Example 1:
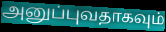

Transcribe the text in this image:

அனுப்புவதாகவும்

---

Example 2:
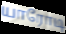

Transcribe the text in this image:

யாரோடி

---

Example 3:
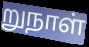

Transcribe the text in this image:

றுநாள்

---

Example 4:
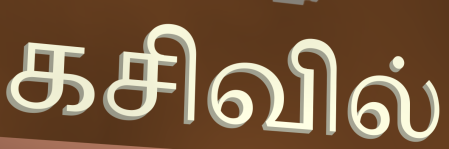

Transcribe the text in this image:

கசிவில்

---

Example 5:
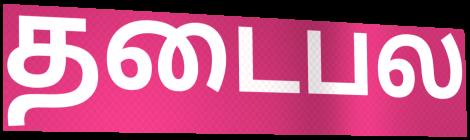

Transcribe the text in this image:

தடைபல